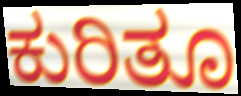
ಕುರಿತೂ